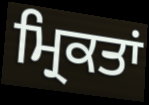
ਮ੍ਰਿਕਤਾਂ